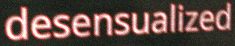
desensualized